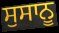
ਸੁਸਾਨੂ